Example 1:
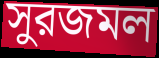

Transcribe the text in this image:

সুরজমল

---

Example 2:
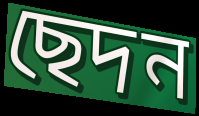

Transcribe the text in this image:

ছেদন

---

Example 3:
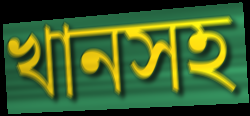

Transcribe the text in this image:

খানসহ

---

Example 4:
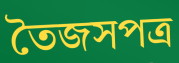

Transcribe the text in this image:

তৈজসপত্র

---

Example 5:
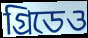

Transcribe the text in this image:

গ্রিডেও